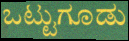
ಒಟ್ಟುಗೂಡು